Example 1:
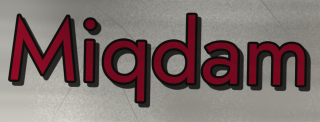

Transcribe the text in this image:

Miqdam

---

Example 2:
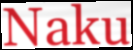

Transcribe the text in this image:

Naku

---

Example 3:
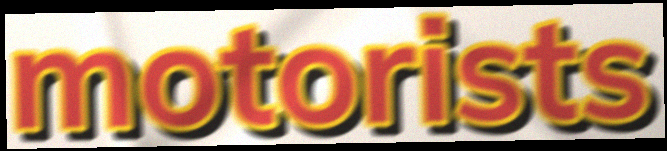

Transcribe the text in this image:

motorists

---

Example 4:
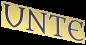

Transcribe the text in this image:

UNTE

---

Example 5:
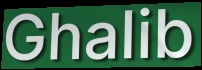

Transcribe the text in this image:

Ghalib